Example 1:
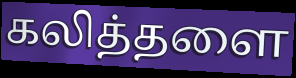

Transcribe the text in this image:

கலித்தளை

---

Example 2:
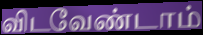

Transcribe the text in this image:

விடவேண்டாம்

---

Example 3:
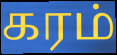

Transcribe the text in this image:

கரம்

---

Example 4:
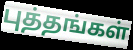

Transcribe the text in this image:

புத்தங்கள்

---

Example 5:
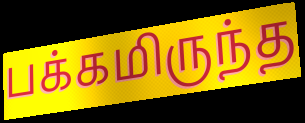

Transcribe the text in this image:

பக்கமிருந்த